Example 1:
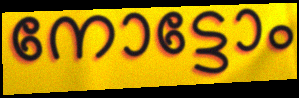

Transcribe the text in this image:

നോട്ടോം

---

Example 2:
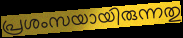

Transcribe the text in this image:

പ്രശംസയായിരുന്നതു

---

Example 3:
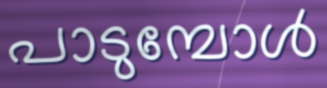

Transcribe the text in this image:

പാടുമ്പോൾ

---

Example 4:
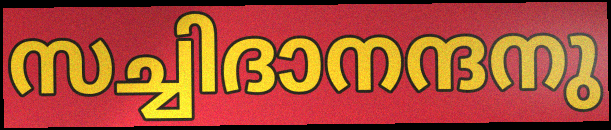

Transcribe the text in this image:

സച്ചിദാനന്ദനു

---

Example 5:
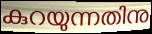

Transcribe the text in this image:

കുറയുന്നതിനു